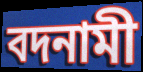
বদনামী